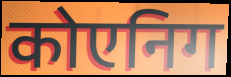
कोएनिग